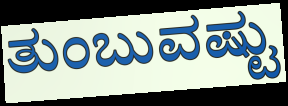
ತುಂಬುವಷ್ಟು